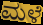
ಮಳೆ